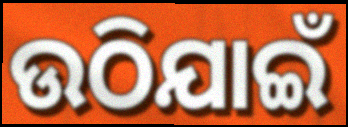
ଉଠିଯାଇଁ